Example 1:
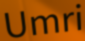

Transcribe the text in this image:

Umri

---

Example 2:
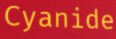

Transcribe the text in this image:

Cyanide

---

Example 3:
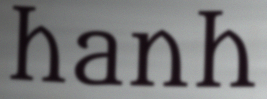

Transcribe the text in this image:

hanh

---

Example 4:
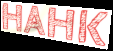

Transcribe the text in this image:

HAHK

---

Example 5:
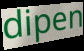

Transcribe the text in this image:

dipen